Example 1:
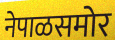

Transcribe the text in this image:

नेपाळसमोर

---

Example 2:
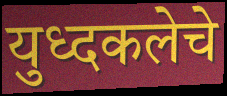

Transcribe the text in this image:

युध्दकलेचे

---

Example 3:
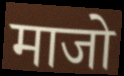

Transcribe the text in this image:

माजो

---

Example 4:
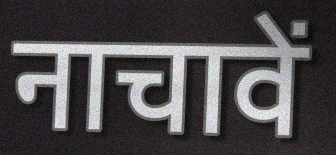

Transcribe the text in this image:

नाचावें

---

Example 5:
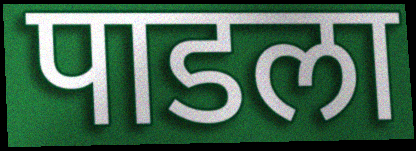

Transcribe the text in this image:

पाडला